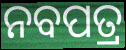
ନବପତ୍ର